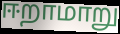
ஈறாமாறு